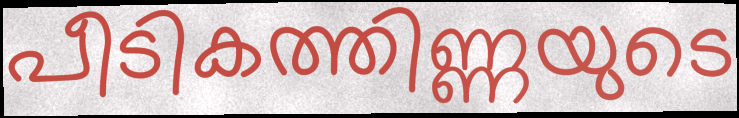
പീടികത്തിണ്ണയുടെ